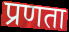
प्रणता